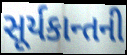
સૂર્યકાન્તની